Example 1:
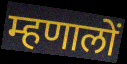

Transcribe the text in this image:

म्हणालों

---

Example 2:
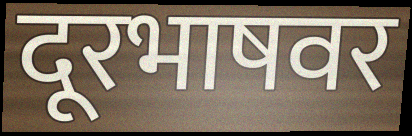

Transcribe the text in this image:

दूरभाषवर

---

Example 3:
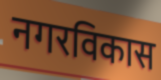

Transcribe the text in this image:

नगरविकास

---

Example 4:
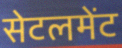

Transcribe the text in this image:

सेटलमेंट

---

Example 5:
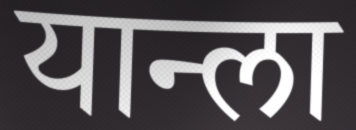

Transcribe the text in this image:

यान्ला